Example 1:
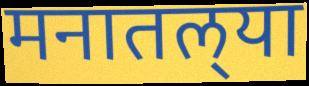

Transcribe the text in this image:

मनातल्या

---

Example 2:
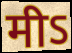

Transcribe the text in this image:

मीऽ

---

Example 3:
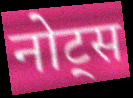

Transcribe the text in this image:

नोट्‌स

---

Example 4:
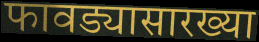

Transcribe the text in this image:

फावड्यासारख्या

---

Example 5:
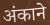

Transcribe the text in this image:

अंकाने